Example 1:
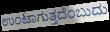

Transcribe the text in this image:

ಉಂಟಾಗುತ್ತದೆಂಬುದು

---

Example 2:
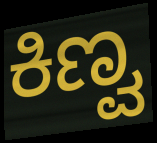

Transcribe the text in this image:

ಕಿಣ್ವ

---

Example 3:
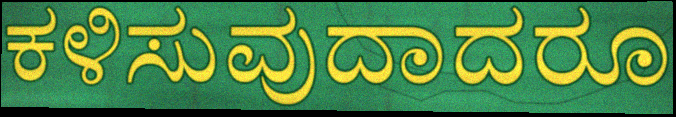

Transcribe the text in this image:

ಕಳಿಸುವುದಾದರೂ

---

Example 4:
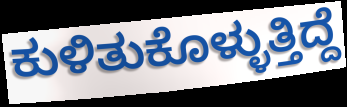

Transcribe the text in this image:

ಕುಳಿತುಕೊಳ್ಳುತ್ತಿದ್ದೆ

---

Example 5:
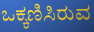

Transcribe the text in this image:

ಒಕ್ಕಣಿಸಿರುವ